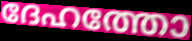
ദേഹത്തോ